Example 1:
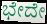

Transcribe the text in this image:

ಭೇದೇ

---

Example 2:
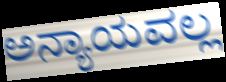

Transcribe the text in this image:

ಅನ್ಯಾಯವಲ್ಲ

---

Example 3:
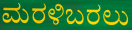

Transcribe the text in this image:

ಮರಳಿಬರಲು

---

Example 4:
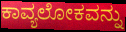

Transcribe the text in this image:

ಕಾವ್ಯಲೋಕವನ್ನು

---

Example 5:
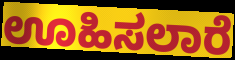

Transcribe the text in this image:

ಊಹಿಸಲಾರೆ